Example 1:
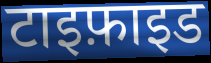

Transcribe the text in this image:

टाइफ़ाइड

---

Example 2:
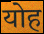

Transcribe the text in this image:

योह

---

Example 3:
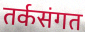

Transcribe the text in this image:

तर्कसंगत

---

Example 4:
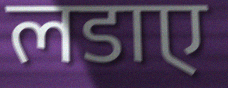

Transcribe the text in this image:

लडाए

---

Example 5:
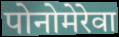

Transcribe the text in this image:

पोनोमेरेवा